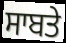
ਸਾਬਤੇ